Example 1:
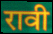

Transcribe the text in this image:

रावी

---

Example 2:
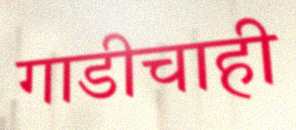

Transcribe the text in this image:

गाडीचाही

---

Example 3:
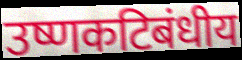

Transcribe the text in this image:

उष्णकटिबंधीय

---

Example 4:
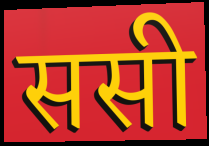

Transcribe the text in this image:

ससी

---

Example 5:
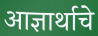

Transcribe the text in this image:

आज्ञार्थाचे